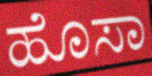
ಹೊಸಾ